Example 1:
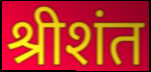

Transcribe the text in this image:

श्रीशंत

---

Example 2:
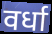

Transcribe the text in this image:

वर्धा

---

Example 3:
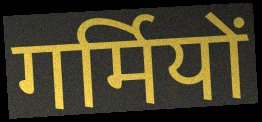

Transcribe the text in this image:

गर्मियों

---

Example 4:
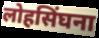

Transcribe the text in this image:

लोहसिंघना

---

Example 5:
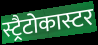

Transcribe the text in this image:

स्ट्रैटोकास्टर